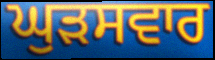
ਘੁੜਸਵਾਰ